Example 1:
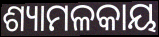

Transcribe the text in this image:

ଶ୍ୟାମଳକାୟ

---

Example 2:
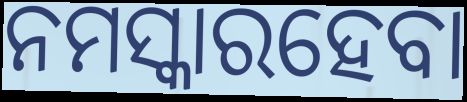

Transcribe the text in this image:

ନମସ୍କାରହେବା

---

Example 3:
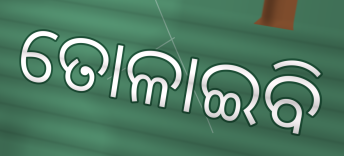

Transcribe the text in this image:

ତୋଳାଇବି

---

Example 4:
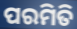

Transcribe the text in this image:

ପରମିତି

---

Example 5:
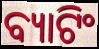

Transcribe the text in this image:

ବ୍ୟାଟିଂ